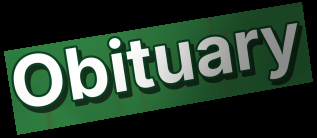
Obituary